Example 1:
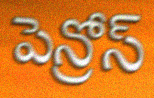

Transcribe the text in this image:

పెన్రోస్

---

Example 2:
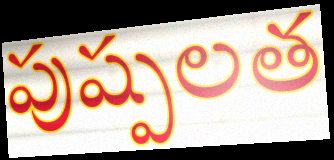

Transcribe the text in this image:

పుష్పలత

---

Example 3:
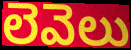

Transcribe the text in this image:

లెవెలు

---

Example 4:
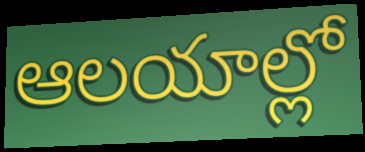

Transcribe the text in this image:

ఆలయాల్లో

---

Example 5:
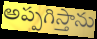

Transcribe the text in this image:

అప్పగిస్తాను